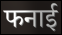
फनाई